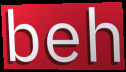
beh